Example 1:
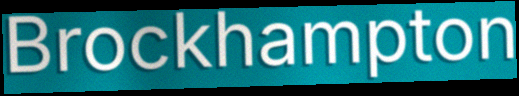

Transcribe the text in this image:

Brockhampton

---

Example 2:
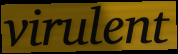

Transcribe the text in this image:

virulent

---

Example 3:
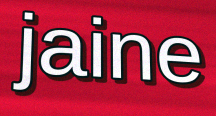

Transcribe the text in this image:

jaine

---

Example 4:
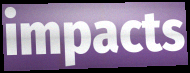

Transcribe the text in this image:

impacts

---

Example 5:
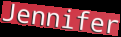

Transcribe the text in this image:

Jennifer